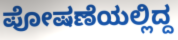
ಪೋಷಣೆಯಲ್ಲಿದ್ದ